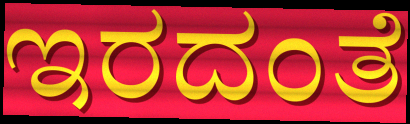
ಇರದಂತೆ